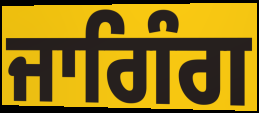
ਜਾਗਿੰਗ